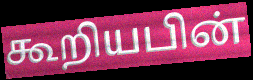
கூறியபின்